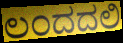
ಲಂದದಲಿ